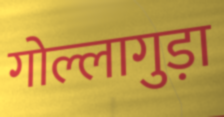
गोल्लागुड़ा